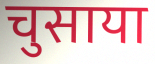
चुसाया